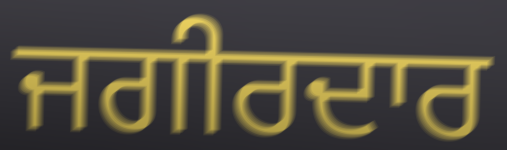
ਜਗੀਰਦਾਰ